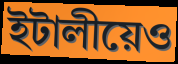
ইটালীয়েও